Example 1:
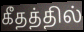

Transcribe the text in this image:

கீதத்தில்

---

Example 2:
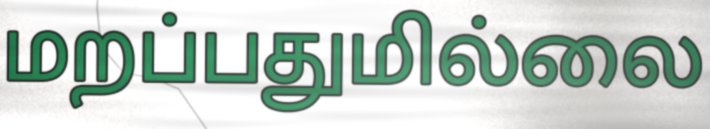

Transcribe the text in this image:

மறப்பதுமில்லை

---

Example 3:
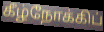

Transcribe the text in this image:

கீழ்நோக்கிப்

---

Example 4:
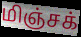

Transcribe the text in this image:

மிஞ்சக்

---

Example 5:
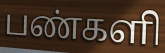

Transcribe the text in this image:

பண்களி